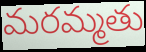
మరమ్మతు